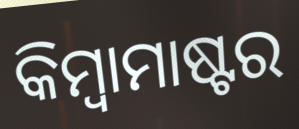
କିମ୍ୱାମାଷ୍ଟର